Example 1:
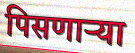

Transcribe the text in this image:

पिसणाऱ्या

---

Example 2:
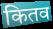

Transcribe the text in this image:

कितव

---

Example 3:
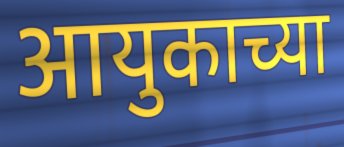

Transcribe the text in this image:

आयुकाच्या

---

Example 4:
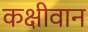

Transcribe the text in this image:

कक्षीवान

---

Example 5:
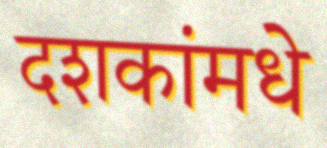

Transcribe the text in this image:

दशकांमधे